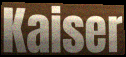
Kaiser